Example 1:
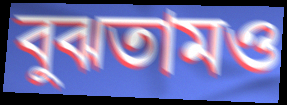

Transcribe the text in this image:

বুঝতামও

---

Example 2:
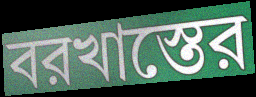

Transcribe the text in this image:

বরখাস্তের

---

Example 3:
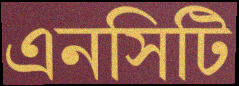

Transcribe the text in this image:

এনসিটি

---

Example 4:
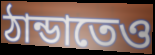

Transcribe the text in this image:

ঠান্ডাতেও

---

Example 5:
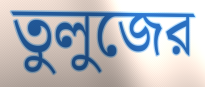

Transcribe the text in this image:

তুলুজের